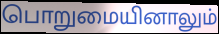
பொறுமையினாலும்